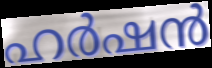
ഹർഷൻ